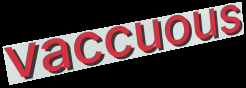
vaccuous